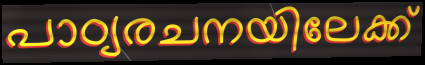
പാഠ്യരചനയിലേക്ക്